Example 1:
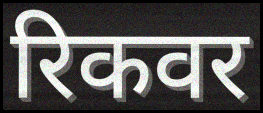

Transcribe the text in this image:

रिकवर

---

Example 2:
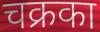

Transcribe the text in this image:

चक्रका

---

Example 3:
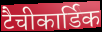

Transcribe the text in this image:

टैचीकार्डिक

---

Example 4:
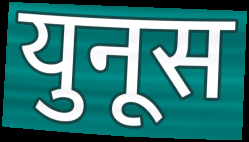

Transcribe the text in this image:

युनूस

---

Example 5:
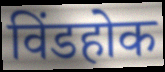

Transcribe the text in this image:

विंडहोक